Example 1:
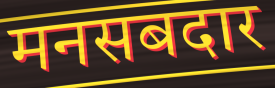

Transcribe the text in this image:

मनसबदार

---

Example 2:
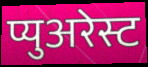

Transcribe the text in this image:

प्युअरेस्ट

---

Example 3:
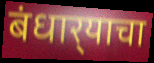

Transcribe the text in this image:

बंधार्‍याचा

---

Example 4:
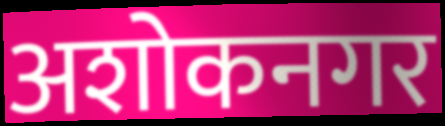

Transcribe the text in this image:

अशोकनगर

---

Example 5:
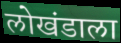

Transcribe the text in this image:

लोखंडाला